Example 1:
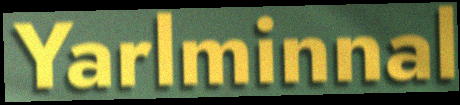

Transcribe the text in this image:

Yarlminnal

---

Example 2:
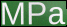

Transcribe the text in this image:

MPa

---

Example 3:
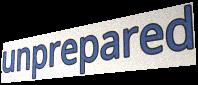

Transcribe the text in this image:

unprepared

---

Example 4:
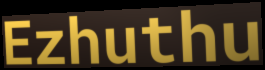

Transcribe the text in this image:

Ezhuthu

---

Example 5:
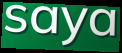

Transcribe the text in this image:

saya